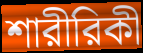
শারীরিকী